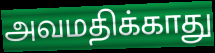
அவமதிக்காது